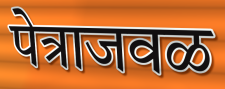
पेत्राजवळ